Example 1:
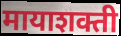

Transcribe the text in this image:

मायाशक्ती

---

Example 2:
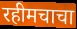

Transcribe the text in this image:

रहीमचाचा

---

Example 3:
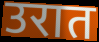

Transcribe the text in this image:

उरात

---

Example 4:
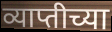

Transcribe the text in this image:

व्याप्तीच्या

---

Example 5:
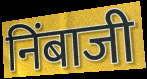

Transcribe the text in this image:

निंबाजी